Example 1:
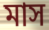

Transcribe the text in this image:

মাস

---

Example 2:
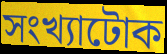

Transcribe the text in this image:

সংখ্যাটোক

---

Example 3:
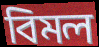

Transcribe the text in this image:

বিমল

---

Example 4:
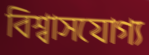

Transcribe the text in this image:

বিশ্বাসযোগ্য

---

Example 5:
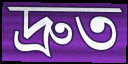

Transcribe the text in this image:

দ্ৰুত